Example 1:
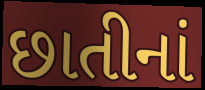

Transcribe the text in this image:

છાતીનાં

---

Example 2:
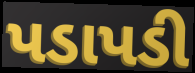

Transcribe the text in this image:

પડાપડી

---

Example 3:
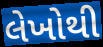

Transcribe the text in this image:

લેખોથી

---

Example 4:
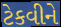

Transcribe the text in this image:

ટેકવીને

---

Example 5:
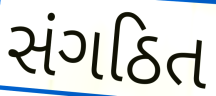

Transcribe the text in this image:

સંગઠિત